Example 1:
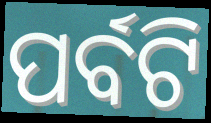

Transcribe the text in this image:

ପର୍ବଟି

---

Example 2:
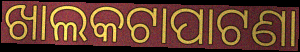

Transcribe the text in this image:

ଖାଲକଟାପାଟଣା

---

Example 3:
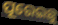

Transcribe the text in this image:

ପୂରେଇଛୁ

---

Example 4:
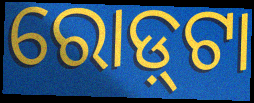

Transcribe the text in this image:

ରୋଡ଼୍‌ଟା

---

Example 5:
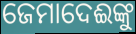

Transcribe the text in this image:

ଜେମାଦେଈଙ୍କୁ